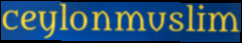
ceylonmuslim